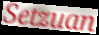
Setzuan